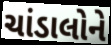
ચાંડાલોને